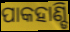
ପାକହାଣ୍ଡି